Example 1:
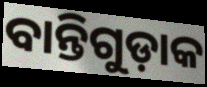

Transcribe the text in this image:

ବାନ୍ତିଗୁଡ଼ାକ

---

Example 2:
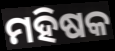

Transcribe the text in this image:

ମହିଷକ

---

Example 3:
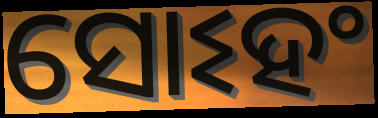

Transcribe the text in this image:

ସୋଽହଂ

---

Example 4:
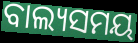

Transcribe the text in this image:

ବାଲ୍ୟସମୟ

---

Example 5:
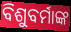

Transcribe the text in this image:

ବିଶୁବର୍ମାଙ୍କ